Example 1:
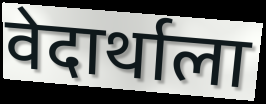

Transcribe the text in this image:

वेदार्थाला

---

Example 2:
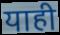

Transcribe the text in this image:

याही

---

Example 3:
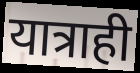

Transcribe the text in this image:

यात्राही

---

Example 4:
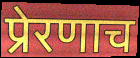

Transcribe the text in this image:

प्रेरणाच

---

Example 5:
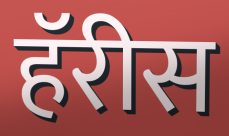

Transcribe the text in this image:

हॅरीस